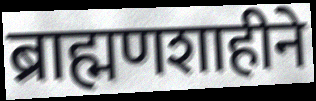
ब्राह्मणशाहीने